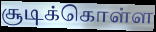
சூடிக்கொள்ள